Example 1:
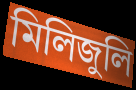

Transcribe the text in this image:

মিলিজুলি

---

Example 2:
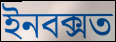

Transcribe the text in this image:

ইনবক্সত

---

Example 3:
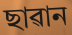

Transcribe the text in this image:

ছাৱান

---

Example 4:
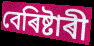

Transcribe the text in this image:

বেৰিষ্টাৰী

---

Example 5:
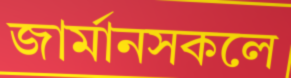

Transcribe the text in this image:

জাৰ্মানসকলে